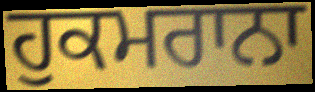
ਹੁਕਮਰਾਨਾ